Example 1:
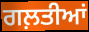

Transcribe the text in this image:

ਗਲ਼ਤੀਆਂ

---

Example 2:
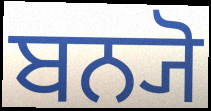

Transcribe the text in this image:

ਬਨ੍ਯੋ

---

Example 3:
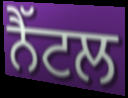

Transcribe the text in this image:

ਨੈੱਟਲ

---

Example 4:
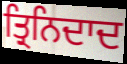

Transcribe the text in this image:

ਤ੍ਰਿਨਿਦਾਦ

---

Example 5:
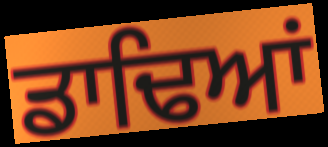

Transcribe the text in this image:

ਡਾਢਿਆਂ